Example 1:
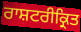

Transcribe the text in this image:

ਰਾਸ਼ਟਰੀਕ੍ਰਿਤ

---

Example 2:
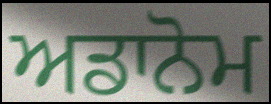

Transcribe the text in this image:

ਅਡਾਨੋਮ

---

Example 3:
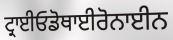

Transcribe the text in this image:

ਟ੍ਰਾਈਓਡੋਥਾਈਰੋਨਾਈਨ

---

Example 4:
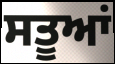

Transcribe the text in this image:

ਸਤੂਆਂ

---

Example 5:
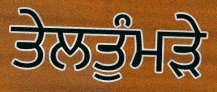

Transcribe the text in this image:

ਤੇਲਤੁੰਮੜੇ